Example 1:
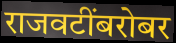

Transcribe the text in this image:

राजवटींबरोबर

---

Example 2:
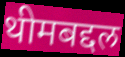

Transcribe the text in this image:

थीमबद्दल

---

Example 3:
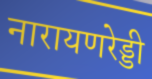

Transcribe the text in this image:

नारायणरेड्डी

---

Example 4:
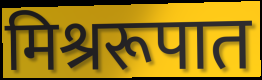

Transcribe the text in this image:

मिश्ररूपात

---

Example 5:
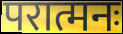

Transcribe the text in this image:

परात्मनः